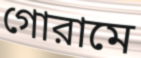
গোরামে